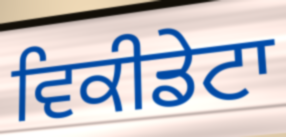
ਵਿਕੀਡੇਟਾ